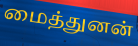
மைத்துனன்